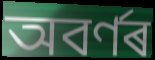
অবৰ্ণৰ